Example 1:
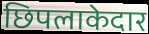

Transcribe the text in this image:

छिपलाकेदार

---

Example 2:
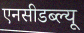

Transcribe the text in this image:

एनसीडब्ल्यू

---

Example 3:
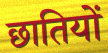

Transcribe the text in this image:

छातियों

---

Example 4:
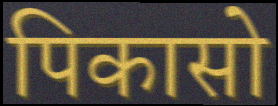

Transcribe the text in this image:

पिकासो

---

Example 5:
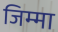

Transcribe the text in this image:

जिम्मा